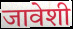
जावेशी